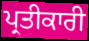
ਪ੍ਰਤੀਕਾਰੀ